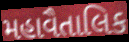
મહાવૈતાલિક